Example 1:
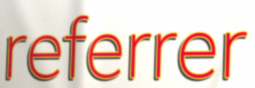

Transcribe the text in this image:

referrer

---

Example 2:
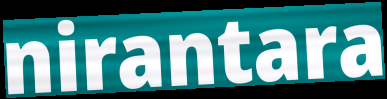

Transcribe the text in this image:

nirantara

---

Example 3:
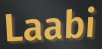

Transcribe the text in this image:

Laabi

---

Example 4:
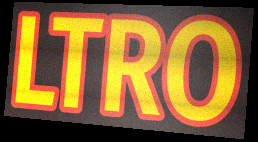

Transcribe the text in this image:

LTRO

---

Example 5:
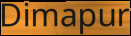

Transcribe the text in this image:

Dimapur